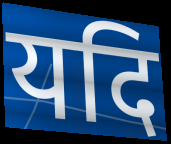
यदि